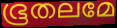
ഭൂതലമേ